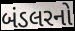
બંડલરનો